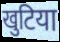
खुटिया